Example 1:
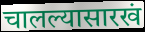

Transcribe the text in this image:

चालल्यासारखं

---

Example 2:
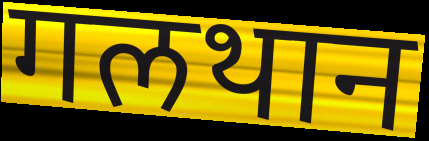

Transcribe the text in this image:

गलथान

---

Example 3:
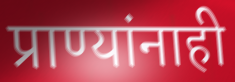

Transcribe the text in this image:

प्राण्यांनाही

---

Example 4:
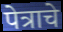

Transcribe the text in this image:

पेत्राचे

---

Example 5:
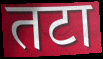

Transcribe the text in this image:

तटा